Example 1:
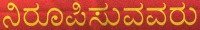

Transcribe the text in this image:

ನಿರೂಪಿಸುವವರು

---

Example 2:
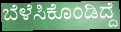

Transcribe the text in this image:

ಬೆಳೆಸಿಕೊಂಡಿದ್ದೆ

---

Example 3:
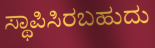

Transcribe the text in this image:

ಸ್ಥಾಪಿಸಿರಬಹುದು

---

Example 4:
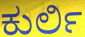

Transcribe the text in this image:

ಕುರ್ಲಿ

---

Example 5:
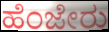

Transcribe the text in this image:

ಹೆಂಜೇರು